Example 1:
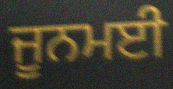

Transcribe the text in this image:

ਜੂਨਮਈ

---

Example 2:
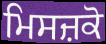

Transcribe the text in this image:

ਮਿਸਜ਼ਕੋ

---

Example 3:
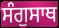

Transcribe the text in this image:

ਸੰਗੁਸਾਥ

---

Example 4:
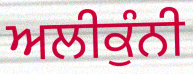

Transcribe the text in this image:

ਅਲੀਕੁੰਨੀ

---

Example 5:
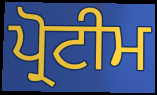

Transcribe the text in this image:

ਪ੍ਰੋਟੀਮ